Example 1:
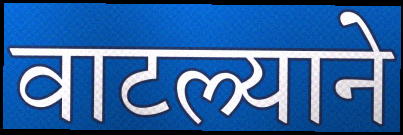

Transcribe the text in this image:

वाटल्याने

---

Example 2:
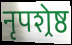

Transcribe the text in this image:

नृपश्रेष्ठ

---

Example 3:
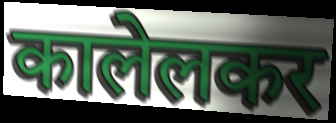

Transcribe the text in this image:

कालेलकर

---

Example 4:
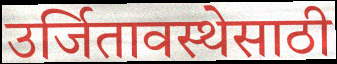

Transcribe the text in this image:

उर्जितावस्थेसाठी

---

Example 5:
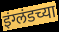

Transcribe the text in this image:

इंग्‍लंडच्या